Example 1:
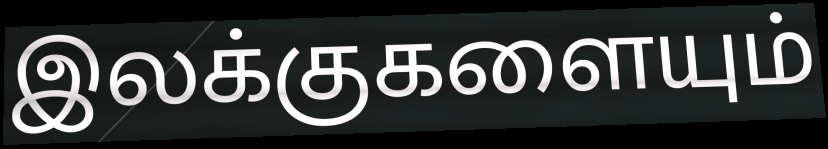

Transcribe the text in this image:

இலக்குகளையும்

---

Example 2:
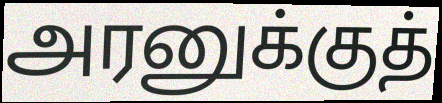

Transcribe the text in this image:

அரனுக்குத்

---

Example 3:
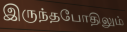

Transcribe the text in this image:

இருந்தபோதிலும்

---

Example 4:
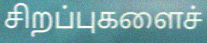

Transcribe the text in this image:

சிறப்புகளைச்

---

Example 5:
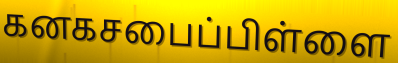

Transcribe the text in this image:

கனகசபைப்பிள்ளை